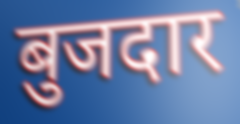
बुजदार